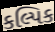
કલ્પિક